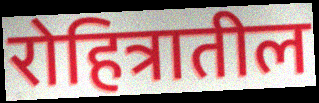
रोहित्रातील